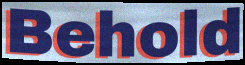
Behold